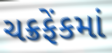
ચક્રફેંકમાં